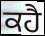
ਕਹੈ